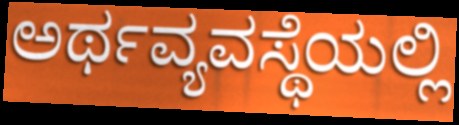
ಅರ್ಥವ್ಯವಸ್ಥೆಯಲ್ಲಿ